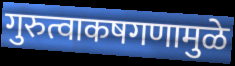
गुरुत्वाकषगणामुळे